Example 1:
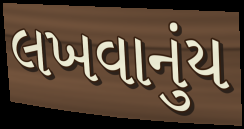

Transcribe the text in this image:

લખવાનુંય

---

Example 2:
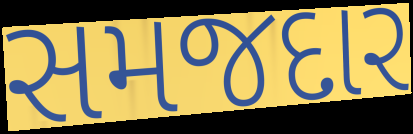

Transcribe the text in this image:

સમજદાર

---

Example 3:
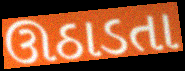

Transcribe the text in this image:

ઊઠાડતા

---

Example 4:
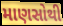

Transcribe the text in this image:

માણસોથી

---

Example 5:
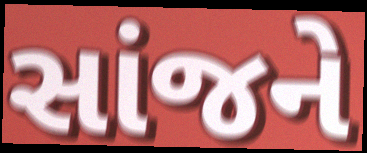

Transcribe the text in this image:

સાંજને